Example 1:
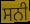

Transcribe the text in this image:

ਸਨੀ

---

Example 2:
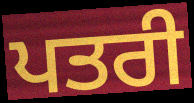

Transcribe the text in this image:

ਪਤਰੀ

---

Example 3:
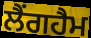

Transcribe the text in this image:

ਲੈਂਗਹੈਮ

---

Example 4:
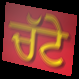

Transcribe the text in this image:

ਚੱਟੇ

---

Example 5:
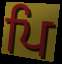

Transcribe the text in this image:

ਪਿ